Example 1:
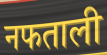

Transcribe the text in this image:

नफताली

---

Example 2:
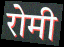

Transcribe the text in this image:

रोमी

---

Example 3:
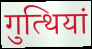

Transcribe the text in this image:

गुत्थियां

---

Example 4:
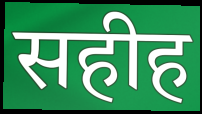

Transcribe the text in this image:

सहीह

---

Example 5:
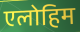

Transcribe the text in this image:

एलोहिम